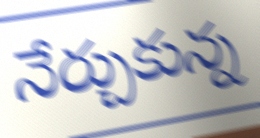
నేర్చుకున్న